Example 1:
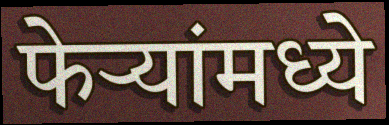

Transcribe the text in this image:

फेऱ्यांमध्ये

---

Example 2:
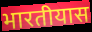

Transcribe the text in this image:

भारतीयास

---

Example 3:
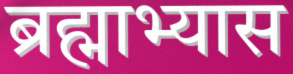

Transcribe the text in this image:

ब्रह्माभ्यास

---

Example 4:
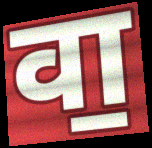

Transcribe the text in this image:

वा॒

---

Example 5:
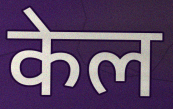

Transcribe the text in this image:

केल